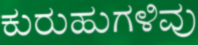
ಕುರುಹುಗಳಿವು